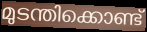
മുടന്തിക്കൊണ്ട്